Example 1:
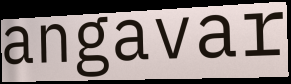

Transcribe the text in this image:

angavar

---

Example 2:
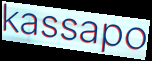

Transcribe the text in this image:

kassapo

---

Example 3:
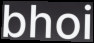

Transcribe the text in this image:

bhoi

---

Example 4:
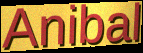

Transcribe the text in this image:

Anibal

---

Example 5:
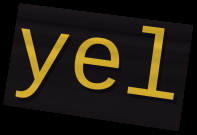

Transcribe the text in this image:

yel